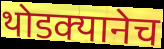
थोडक्यानेच